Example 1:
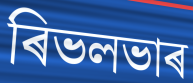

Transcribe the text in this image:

ৰিভলভাৰ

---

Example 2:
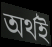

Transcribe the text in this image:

অৰ্থই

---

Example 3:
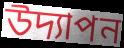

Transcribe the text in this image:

উদ্যাপন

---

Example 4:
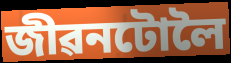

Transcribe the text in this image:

জীৱনটোলৈ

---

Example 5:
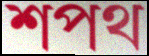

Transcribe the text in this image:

শপথ